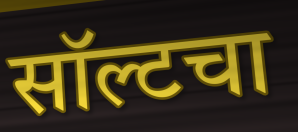
सॉल्टचा